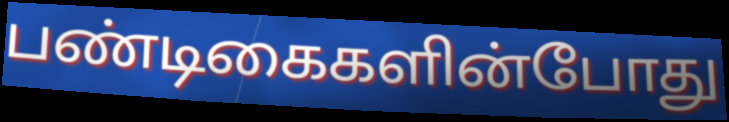
பண்டிகைகளின்போது